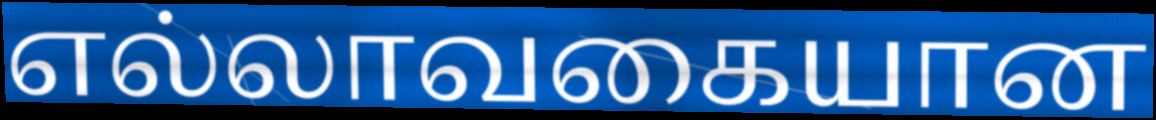
எல்லாவகையான